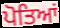
ਪੋਤਿਆਂ